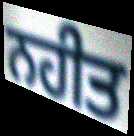
ਨਹੀਤ